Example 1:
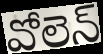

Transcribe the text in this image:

వోలెన్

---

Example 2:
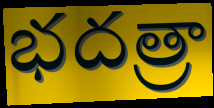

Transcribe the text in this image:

భదత్రా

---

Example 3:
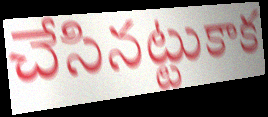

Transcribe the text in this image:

చేసినట్టుకాక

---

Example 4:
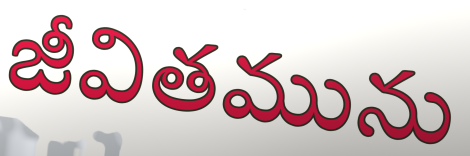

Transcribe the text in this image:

జీవితమును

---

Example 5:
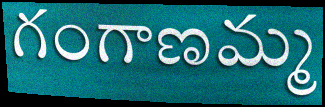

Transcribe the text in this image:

గంగాణమ్మ